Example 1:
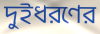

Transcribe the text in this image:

দুইধরণের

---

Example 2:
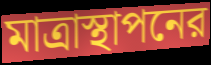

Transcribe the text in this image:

মাত্রাস্থাপনের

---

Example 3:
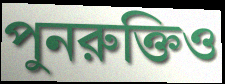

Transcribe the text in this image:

পুনরুক্তিও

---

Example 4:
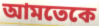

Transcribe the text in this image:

আমতেকে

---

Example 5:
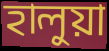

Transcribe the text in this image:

হালুয়া